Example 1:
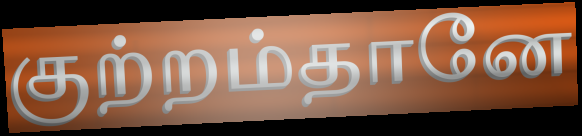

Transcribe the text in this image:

குற்றம்தானே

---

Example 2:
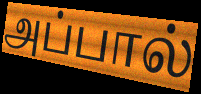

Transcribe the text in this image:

அப்பால்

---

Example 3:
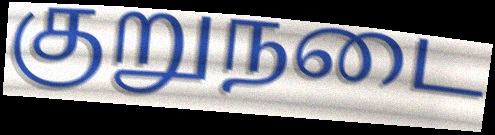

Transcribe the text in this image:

குறுநடை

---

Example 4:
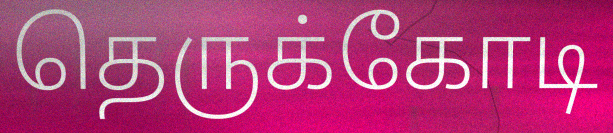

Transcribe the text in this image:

தெருக்கோடி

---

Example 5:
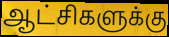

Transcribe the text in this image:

ஆட்சிகளுக்கு